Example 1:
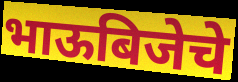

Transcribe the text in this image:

भाऊबिजेचे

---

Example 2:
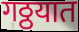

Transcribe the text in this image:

गठ्ठयात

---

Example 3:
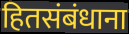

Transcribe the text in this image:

हितसंबंधाना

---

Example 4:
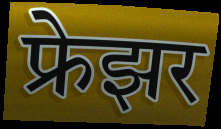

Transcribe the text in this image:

फ्रेझर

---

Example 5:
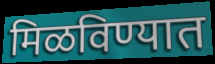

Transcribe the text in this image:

मिळविण्यात